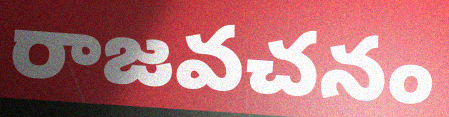
రాజవచనం